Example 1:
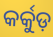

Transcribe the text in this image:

କର୍କୁଡ଼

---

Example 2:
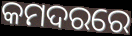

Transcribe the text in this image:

କମଦରରେ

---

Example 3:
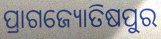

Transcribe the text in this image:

ପ୍ରାଗଜ୍ୟୋତିଷପୁର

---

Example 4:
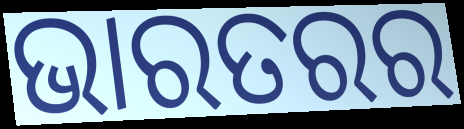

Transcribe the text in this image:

ଭାରତରର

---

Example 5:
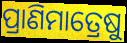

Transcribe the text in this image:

ପ୍ରାଣିମାତ୍ରେଷୁ